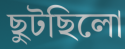
ছুটছিলো